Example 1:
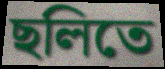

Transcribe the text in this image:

ছলিতে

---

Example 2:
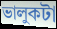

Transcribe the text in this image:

ভালুকটা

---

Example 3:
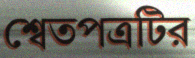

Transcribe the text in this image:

শ্বেতপত্রটির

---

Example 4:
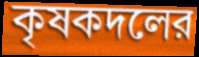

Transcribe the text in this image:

কৃষকদলের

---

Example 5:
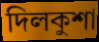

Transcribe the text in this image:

দিলকুশা